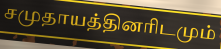
சமுதாயத்தினரிடமும்